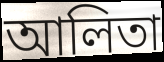
আলিতা